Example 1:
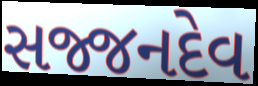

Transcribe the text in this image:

સજ્જનદેવ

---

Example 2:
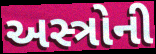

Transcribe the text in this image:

અસ્ત્રોની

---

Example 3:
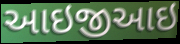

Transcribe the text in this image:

આઇજીઆઇ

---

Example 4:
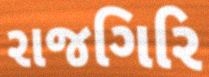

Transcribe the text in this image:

રાજગિરિ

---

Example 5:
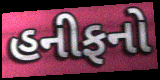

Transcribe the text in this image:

હનીફનો